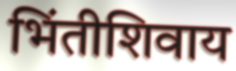
भिंतीशिवाय